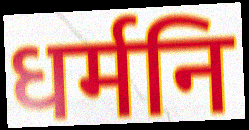
धर्मनि